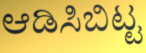
ಆಡಿಸಿಬಿಟ್ಟ